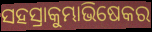
ସହସ୍ରାକୁମ୍ଭାଭିଷେକର